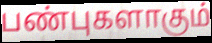
பண்புகளாகும்